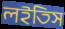
লইতিস